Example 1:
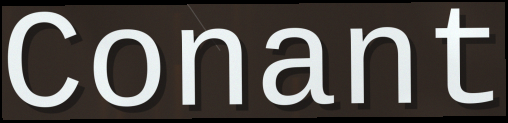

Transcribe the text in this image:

Conant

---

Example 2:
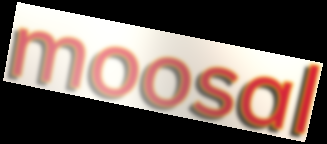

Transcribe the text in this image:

moosal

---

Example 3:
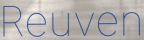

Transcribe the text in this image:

Reuven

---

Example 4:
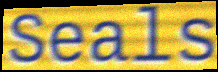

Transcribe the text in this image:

Seals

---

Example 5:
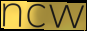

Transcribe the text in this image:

ncw